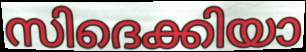
സിദെക്കിയാ